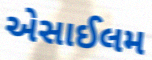
એસાઈલમ